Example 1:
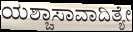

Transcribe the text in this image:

ಯಶ್ಚಾಸಾವಾದಿತ್ಯೇ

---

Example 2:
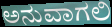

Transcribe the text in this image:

ಅನುವಾಗಲಿ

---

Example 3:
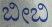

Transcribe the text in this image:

ಬೀಬಿ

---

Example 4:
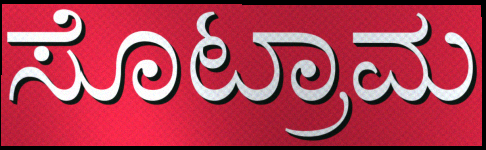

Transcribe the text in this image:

ಸೊಟ್ರಾಮ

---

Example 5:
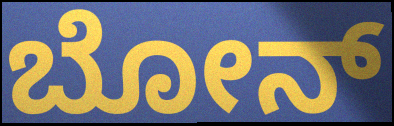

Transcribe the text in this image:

ಬೋನ್